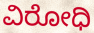
ವಿರೋಧಿ